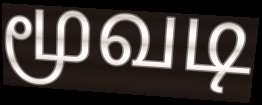
மூவடி